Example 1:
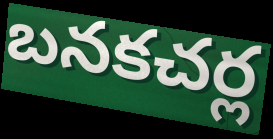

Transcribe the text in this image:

బనకచర్ల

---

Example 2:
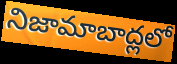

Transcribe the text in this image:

నిజామాబాద్లలో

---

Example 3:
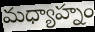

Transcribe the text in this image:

మధ్యాహ్నం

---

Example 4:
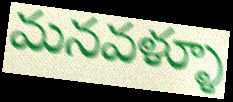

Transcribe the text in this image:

మనవళ్ళూ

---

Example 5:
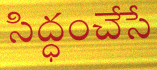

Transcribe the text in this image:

సిద్ధంచేసే